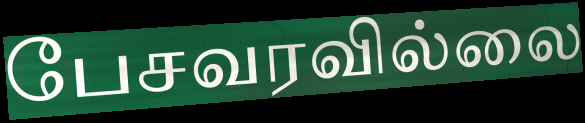
பேசவரவில்லை